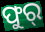
ଫୁର୍